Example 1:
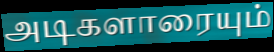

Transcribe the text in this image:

அடிகளாரையும்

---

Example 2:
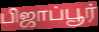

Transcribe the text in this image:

பிஜாப்பூர்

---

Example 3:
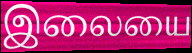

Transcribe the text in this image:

இலையை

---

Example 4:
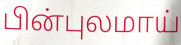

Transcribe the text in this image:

பின்புலமாய்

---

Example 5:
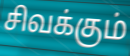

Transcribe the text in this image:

சிவக்கும்